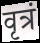
वृत्रं